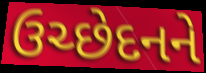
ઉચ્છેદનને